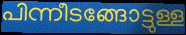
പിന്നീടങ്ങോട്ടുള്ള